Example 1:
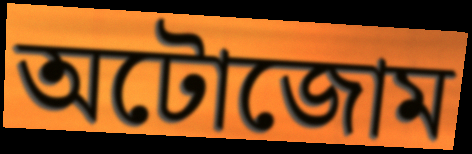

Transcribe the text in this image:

অটোজোম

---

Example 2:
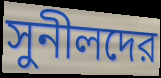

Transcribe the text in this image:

সুনীলদের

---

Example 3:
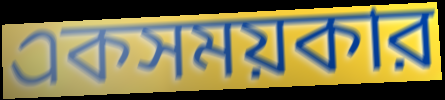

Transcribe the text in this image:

একসময়কার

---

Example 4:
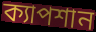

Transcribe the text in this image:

ক্যাপশান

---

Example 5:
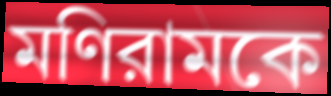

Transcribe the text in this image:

মণিরামকে